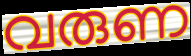
വരുണ